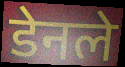
डेनले